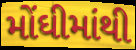
મોંઘીમાંથી